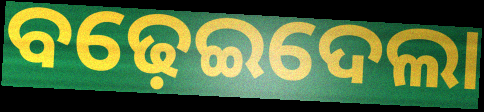
ବଢ଼େଇଦେଲା